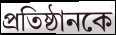
প্রতিষ্ঠানকে